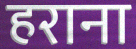
हराना